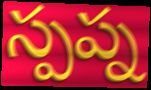
స్పప్న